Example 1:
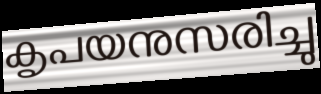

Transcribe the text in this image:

കൃപയനുസരിച്ചു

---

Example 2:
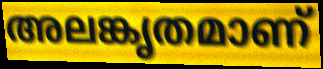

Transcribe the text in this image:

അലങ്കൃതമാണ്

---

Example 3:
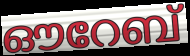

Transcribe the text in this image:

ഔറേബ്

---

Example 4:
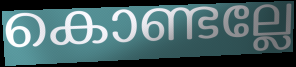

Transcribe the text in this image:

കൊണ്ടല്ലേ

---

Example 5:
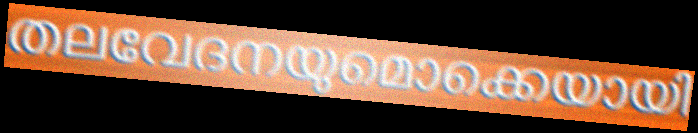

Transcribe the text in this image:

തലവേദനയുമൊക്കെയായി